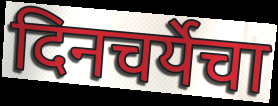
दिनचर्येचा